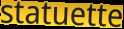
statuette